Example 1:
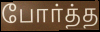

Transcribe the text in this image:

போர்த்த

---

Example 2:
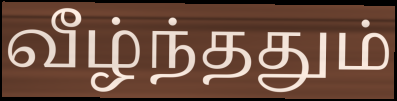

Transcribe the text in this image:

வீழ்ந்ததும்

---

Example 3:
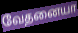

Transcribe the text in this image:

வேதனையா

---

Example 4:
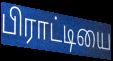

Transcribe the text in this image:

பிராட்டியை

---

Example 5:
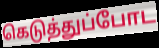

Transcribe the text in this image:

கெடுத்துப்போட